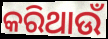
କରିଥାଉଁ